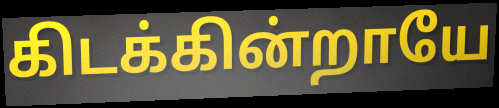
கிடக்கின்றாயே